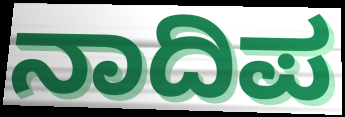
ನಾದಿಪ